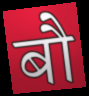
बौ